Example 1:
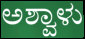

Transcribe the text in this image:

ಅಶ್ವಾಳು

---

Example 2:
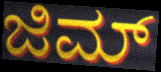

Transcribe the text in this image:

ಜಿಮ್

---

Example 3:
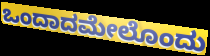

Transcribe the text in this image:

ಒಂದಾದಮೇಲೊಂದು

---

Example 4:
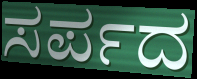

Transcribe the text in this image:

ಸರ್ಪದ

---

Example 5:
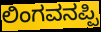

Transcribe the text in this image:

ಲಿಂಗವನಪ್ಪಿ